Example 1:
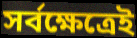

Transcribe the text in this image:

সর্বক্ষেত্রেই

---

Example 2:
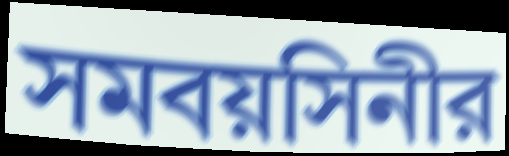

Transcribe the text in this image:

সমবয়সিনীর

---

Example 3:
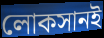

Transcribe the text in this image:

লোকসানই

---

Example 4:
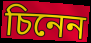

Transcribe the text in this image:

চিনেন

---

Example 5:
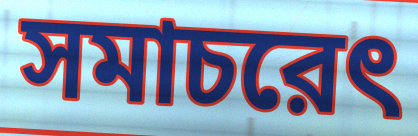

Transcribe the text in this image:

সমাচরেৎ